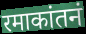
रमाकांतनं